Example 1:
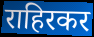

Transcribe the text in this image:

राहिरकर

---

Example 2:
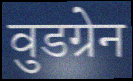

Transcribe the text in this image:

वुडग्रेन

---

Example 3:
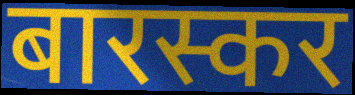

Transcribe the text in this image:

बारस्कर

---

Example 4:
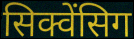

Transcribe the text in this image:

सिक्वेंसिग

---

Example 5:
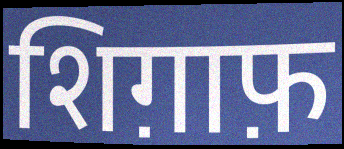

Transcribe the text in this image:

शिग़ाफ़